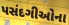
પસંદગીઓના